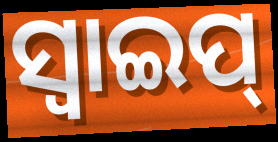
ସ୍ୱାଇପ୍